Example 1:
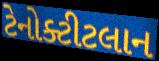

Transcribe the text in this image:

ટેનોક્ટીટલાન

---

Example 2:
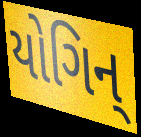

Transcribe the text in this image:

યોગિન્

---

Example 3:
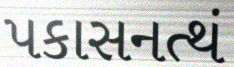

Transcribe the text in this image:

પકાસનત્થં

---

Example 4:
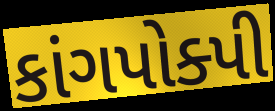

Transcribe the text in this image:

કાંગપોક્પી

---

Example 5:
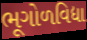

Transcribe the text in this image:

ભૂગોળવિદ્યા